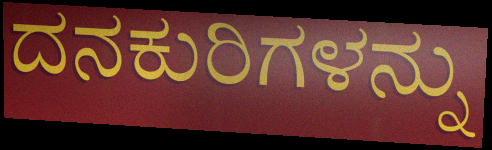
ದನಕುರಿಗಳನ್ನು